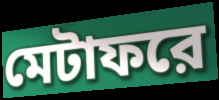
মেটাফরে